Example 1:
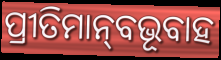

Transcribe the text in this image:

ପ୍ରୀତିମାନ୍‌ବଭୂବାହ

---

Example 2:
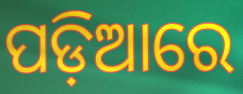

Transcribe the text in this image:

ପଡ଼ିଆରେ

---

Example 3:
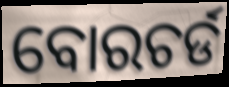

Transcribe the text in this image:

ବୋରଚର୍ଡ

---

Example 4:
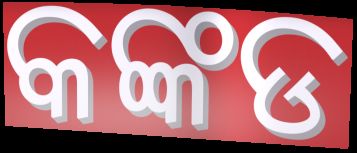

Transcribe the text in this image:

କଙ୍କଡ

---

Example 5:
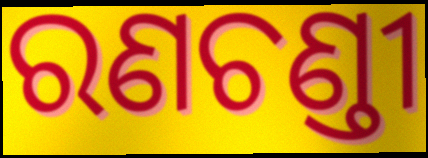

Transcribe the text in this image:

ରଣଚଣ୍ଡୀ